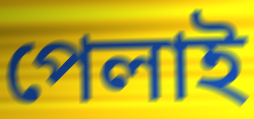
পেলাই